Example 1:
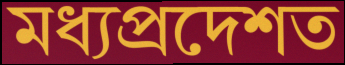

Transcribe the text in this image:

মধ্যপ্ৰদেশত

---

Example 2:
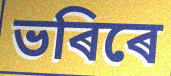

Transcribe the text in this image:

ভৰিৰে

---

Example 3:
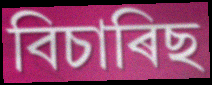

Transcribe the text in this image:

বিচাৰিছ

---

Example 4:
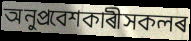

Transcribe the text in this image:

অনুপ্ৰবেশকাৰীসকলৰ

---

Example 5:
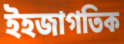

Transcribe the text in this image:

ইহজাগতিক